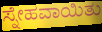
ಸ್ನೇಹವಾಯಿತು